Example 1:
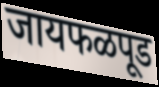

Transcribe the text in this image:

जायफळपूड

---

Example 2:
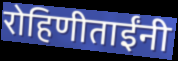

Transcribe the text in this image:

रोहिणीताईंनी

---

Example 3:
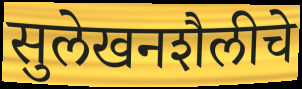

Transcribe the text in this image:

सुलेखनशैलीचे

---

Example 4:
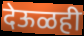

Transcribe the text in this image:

देऊळही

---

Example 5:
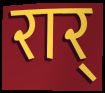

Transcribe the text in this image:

रार्